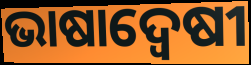
ଭାଷାଦ୍ଵେଷୀ